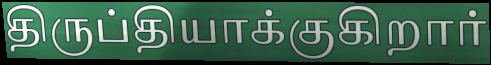
திருப்தியாக்குகிறார்